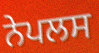
ਨੇਪਲਸ